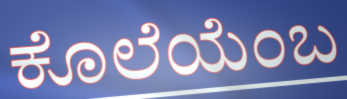
ಕೊಲೆಯೆಂಬ